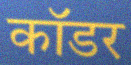
कॉडर